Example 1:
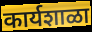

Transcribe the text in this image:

कार्यशाळा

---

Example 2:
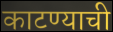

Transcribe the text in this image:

काटण्याची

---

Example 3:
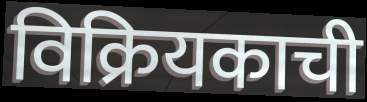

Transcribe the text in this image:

विक्रियकाची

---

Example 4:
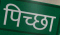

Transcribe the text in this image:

पिच्छा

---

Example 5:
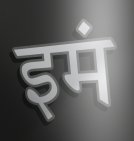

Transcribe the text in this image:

इमं